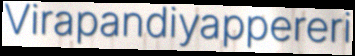
Virapandiyappereri